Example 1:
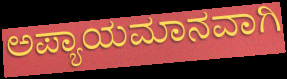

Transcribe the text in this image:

ಅಪ್ಯಾಯಮಾನವಾಗಿ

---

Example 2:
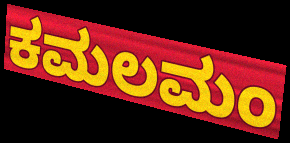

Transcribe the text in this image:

ಕಮಲಮಂ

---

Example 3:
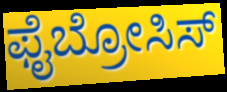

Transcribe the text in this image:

ಫೈಬ್ರೋಸಿಸ್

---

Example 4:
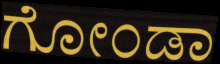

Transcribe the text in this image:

ಗೋಂಡಾ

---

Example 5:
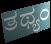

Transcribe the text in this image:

ತಥ್ಯಂ